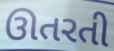
ઊતરતી